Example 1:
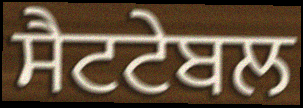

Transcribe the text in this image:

ਸੈਟਟੇਬਲ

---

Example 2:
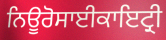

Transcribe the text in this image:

ਨਿਊਰੋਸਾਈਕਾਇਟ੍ਰੀ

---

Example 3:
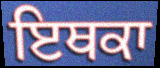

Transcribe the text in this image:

ਇਥਕਾ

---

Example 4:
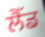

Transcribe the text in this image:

ਲੈੱਡ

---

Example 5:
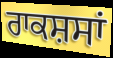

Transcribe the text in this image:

ਰਾਕਸ਼ਸਾਂ